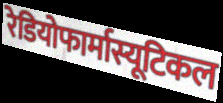
रेडियोफार्मास्यूटिकल